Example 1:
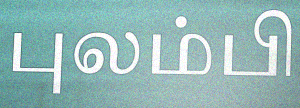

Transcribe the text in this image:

புலம்பி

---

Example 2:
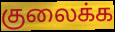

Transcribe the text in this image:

குலைக்க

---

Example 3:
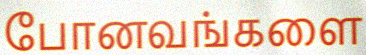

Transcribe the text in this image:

போனவங்களை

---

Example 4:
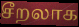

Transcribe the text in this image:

சீறலாக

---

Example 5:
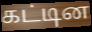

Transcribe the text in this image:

கட்டின